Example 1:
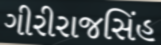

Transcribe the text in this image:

ગીરીરાજસિંહ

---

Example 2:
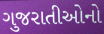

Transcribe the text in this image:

ગુજરાતીઓનો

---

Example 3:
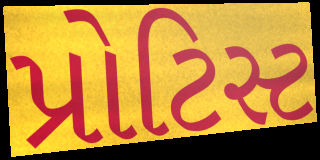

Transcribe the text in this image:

પ્રોટિસ્ટ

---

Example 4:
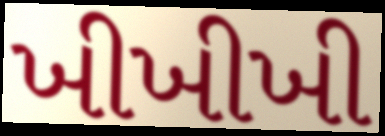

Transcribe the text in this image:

ખીખીખી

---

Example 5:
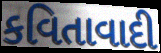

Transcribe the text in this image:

કવિતાવાદી